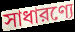
সাধারণ্যে